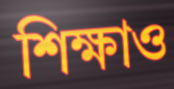
শিক্ষাও